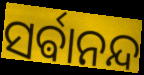
ସର୍ଵାନନ୍ଦ